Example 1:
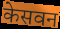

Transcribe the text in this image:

केसवन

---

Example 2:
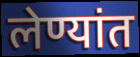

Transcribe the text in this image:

लेण्यांत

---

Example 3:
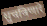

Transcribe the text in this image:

सुचविणारे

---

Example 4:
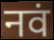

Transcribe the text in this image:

नवं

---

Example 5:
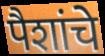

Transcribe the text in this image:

पैशांचे